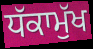
ਧੱਕਾਮੁੱਖ